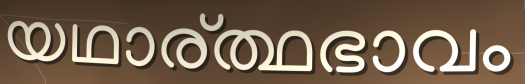
യഥാര്ത്ഥഭാവം